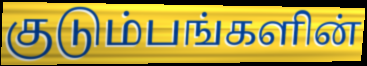
குடும்பங்களின்